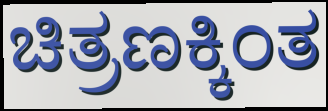
ಚಿತ್ರಣಕ್ಕಿಂತ